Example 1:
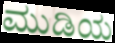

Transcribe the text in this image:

ಮುಡಿಯ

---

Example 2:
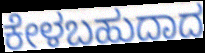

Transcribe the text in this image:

ಕೇಳಬಹುದಾದ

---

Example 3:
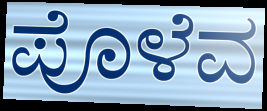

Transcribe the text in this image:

ಪೊಳೆವ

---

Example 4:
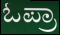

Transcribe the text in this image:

ಓಪ್ರಾ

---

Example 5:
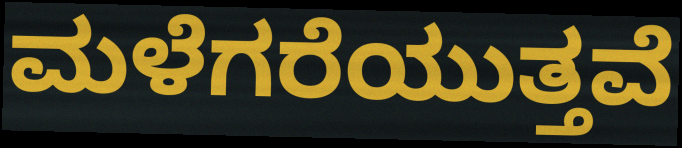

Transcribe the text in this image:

ಮಳೆಗರೆಯುತ್ತವೆ